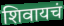
शिवायचं